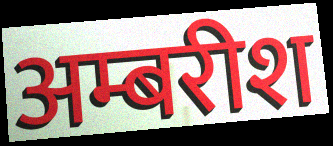
अम्बरीश